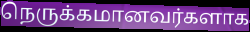
நெருக்கமானவர்களாக